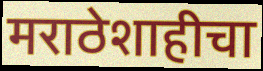
मराठेशाहीचा